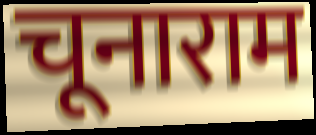
चूनाराम